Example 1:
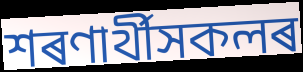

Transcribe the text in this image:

শৰণাৰ্থীসকলৰ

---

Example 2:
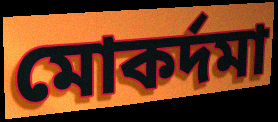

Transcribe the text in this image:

মোকৰ্দমা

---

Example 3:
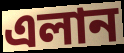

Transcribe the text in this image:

এলান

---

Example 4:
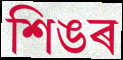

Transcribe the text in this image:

শিঙৰ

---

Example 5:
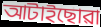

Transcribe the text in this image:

আটাইছোৱা